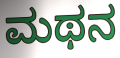
ಮಥನ